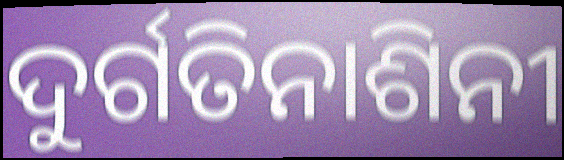
ଦୁର୍ଗତିନାଶିନୀ